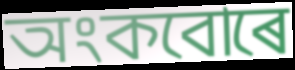
অংকবোৰে